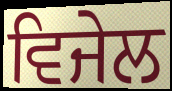
ਵਿਜੇਲ